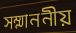
সম্মাননীয়